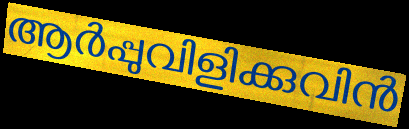
ആർപ്പുവിളിക്കുവിൻ